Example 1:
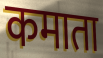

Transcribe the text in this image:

कमाता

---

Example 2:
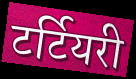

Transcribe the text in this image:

टर्टियरी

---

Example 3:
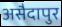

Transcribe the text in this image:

असैदापुर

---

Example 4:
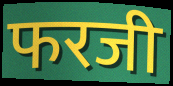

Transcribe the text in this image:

फरजी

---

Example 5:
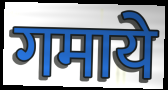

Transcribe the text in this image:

गमाये